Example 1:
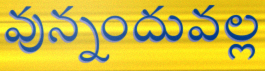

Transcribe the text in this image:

వున్నందువల్ల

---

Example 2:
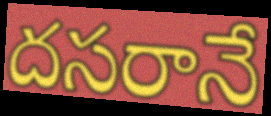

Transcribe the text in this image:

దసరానే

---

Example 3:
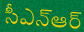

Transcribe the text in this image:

సీఎన్ఆర్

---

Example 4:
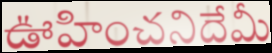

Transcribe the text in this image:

ఊహించనిదేమీ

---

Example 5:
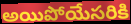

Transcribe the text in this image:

అయిపోయేసరికి